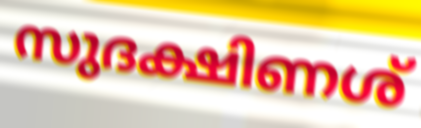
സുദക്ഷിണശ്